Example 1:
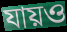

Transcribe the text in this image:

যায়ও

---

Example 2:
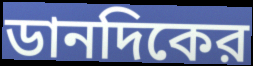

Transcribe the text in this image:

ডানদিকের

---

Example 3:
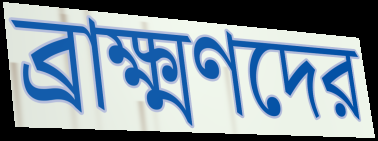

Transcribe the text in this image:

ব্রাক্ষ্মণদের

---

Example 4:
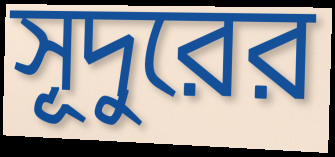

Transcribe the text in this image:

সূদুরের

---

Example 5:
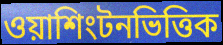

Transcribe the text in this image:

ওয়াশিংটনভিত্তিক